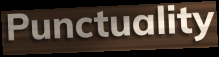
Punctuality